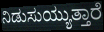
ನಿಡುಸುಯ್ಯುತ್ತಾರೆ